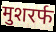
मुशरर्फ